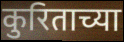
कुरिताच्या